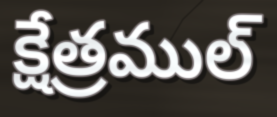
క్షేత్రముల్